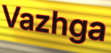
Vazhga